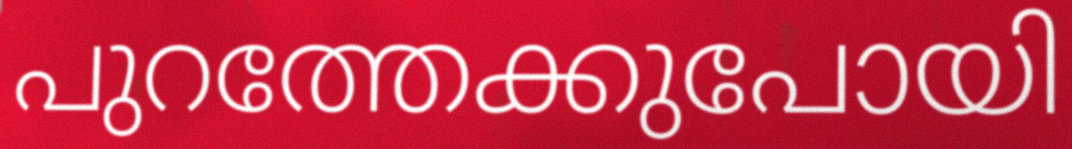
പുറത്തേക്കുപോയി